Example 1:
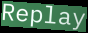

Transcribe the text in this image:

Replay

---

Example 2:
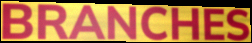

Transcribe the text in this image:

BRANCHES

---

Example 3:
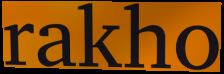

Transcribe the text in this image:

rakho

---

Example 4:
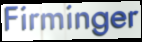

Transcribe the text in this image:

Firminger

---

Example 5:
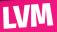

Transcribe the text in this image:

LVM